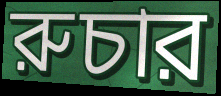
রুচার